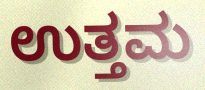
ಉತ್ತಮ